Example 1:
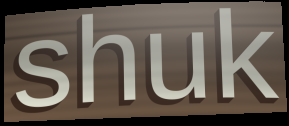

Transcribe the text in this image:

shuk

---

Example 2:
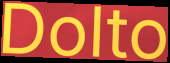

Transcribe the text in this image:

Dolto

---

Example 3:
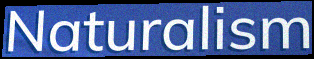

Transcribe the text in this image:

Naturalism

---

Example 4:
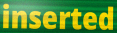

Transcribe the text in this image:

inserted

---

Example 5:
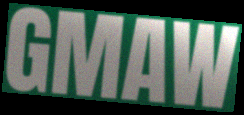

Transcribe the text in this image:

GMAW